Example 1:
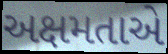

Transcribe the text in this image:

અક્ષમતાએ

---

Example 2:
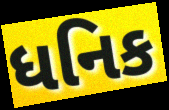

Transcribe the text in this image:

ધનિક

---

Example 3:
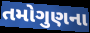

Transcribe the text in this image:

તમોગુણના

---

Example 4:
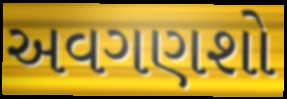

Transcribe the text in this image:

અવગણશો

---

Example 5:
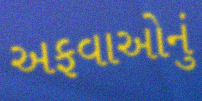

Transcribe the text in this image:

અફવાઓનું